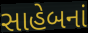
સાહેબનાં